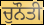
ਚੁਨੌਤੀ